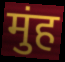
मुंह